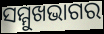
ସମ୍ମୁଖଭାଗର